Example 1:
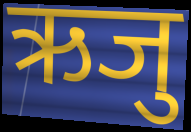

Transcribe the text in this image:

ऋजु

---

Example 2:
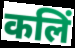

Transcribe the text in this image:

कलिं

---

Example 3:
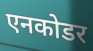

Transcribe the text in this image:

एनकोडर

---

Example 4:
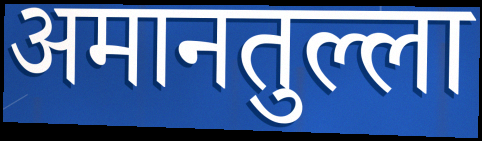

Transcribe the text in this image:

अमानतुल्ला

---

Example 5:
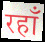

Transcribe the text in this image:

रहाँ